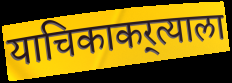
याचिकाकर्त्याला